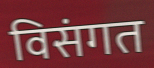
विसंगत